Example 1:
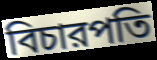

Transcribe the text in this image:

বিচারপতি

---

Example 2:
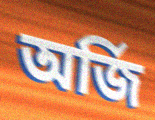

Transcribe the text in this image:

অর্জি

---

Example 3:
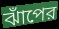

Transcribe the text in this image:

ঝাঁপের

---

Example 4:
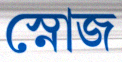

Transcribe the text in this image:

স্নোজ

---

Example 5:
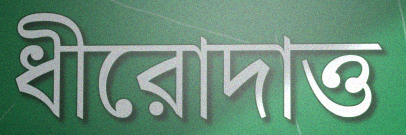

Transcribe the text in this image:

ধীরোদাত্ত